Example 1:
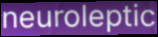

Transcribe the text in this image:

neuroleptic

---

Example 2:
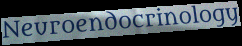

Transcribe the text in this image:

Neuroendocrinology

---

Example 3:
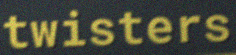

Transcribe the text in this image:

twisters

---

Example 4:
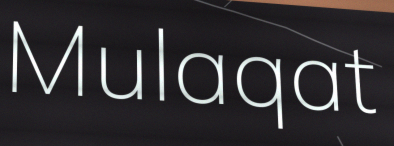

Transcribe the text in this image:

Mulaqat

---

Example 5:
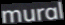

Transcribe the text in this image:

mural